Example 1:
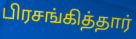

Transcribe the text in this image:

பிரசங்கித்தார்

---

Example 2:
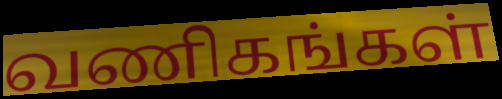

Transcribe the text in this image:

வணிகங்கள்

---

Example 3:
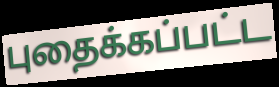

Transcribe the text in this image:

புதைக்கப்பட்ட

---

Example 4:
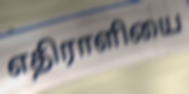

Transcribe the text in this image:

எதிராளியை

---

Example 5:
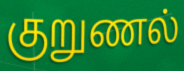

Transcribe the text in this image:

குறுணல்